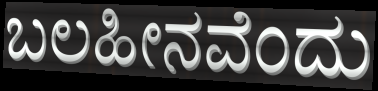
ಬಲಹೀನವೆಂದು